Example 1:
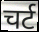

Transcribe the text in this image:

चर्ट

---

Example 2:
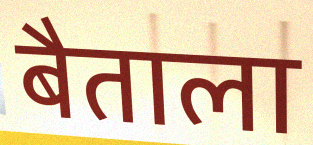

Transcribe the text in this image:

बैताला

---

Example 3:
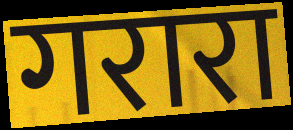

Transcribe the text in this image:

गरारा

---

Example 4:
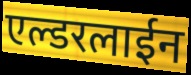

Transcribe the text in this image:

एल्डरलाईन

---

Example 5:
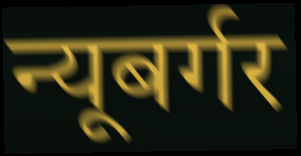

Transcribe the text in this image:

न्यूबर्गर